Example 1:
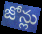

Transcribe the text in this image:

జోన్లు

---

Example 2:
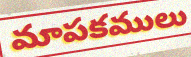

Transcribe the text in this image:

మాపకములు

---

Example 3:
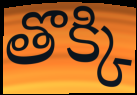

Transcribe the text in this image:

తొక్కి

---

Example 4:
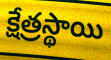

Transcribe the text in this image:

క్షేత్రస్థాయి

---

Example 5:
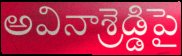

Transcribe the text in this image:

అవినాశ్రెడ్డిపై